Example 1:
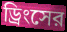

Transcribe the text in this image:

ড্রিংসের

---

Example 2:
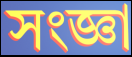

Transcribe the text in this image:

সংজ্ঞা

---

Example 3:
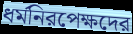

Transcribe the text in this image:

ধর্মনিরপেক্ষদের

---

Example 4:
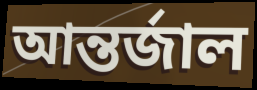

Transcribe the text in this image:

আন্তর্জাল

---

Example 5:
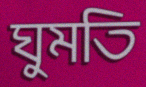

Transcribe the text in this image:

ঘুমতি